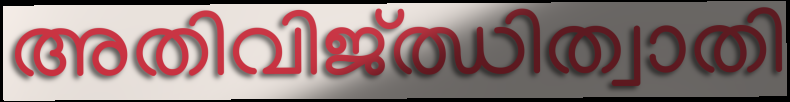
അതിവിജ്ഝിത്വാതി